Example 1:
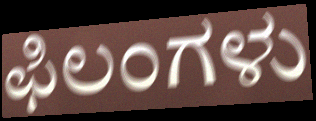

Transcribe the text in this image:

ಫಿಲಂಗಳು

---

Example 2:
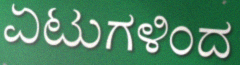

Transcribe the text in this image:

ಏಟುಗಳಿಂದ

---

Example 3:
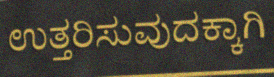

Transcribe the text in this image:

ಉತ್ತರಿಸುವುದಕ್ಕಾಗಿ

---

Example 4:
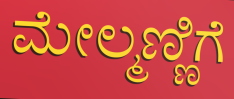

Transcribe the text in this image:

ಮೇಲ್ಮಣ್ಣಿಗೆ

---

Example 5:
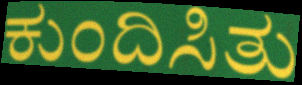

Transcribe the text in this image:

ಕುಂದಿಸಿತು